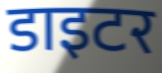
डाइटर